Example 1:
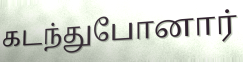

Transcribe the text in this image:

கடந்துபோனார்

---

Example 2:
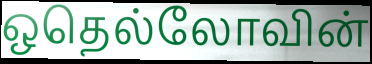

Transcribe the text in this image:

ஒதெல்லோவின்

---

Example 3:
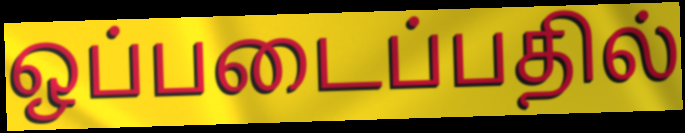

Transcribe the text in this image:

ஒப்படைப்பதில்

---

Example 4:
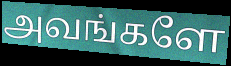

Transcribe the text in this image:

அவங்களே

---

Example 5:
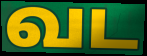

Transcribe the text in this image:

வட